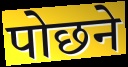
पोछने